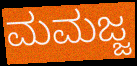
ಮಮಜ್ಜ